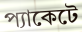
প্যাকেটে